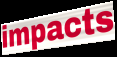
impacts